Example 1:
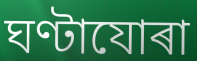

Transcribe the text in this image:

ঘণ্টাযোৰা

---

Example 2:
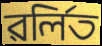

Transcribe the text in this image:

ৱৰ্লিত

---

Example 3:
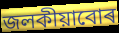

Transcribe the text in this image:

জলকীয়াবোৰ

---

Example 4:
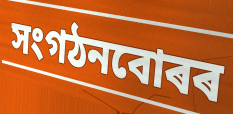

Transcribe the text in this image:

সংগঠনবোৰৰ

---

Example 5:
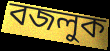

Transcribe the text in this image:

বজলুক